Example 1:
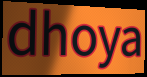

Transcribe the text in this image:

dhoya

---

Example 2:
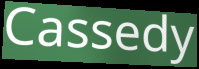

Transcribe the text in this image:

Cassedy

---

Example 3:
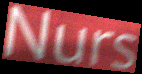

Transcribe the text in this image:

Nurs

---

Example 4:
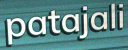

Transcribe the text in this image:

patajali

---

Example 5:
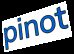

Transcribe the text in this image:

pinot